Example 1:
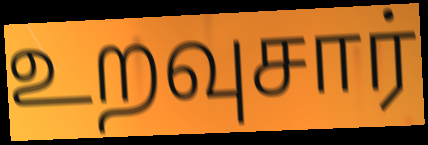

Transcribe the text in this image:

உறவுசார்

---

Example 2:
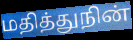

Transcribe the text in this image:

மதித்துநின்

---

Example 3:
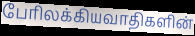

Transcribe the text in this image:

பேரிலக்கியவாதிகளின்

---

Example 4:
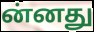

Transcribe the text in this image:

ன்னது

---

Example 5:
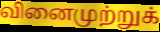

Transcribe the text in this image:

வினைமுற்றுக்